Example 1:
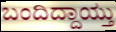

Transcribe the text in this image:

ಬಂದಿದ್ದಾಯ್ತು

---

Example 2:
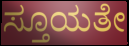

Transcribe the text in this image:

ಸ್ತೂಯತೇ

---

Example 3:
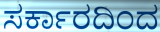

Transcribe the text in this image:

ಸರ್ಕಾರದಿಂದ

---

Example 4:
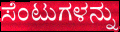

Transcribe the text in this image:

ಸೆಂಟುಗಳನ್ನು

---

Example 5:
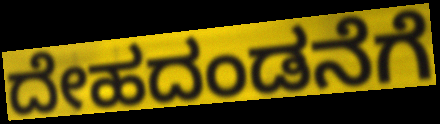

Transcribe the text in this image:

ದೇಹದಂಡನೆಗೆ